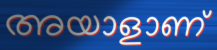
അയാളാണ്